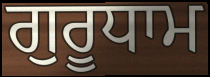
ਗੁਰੂਧਾਮ